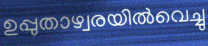
ഉപ്പുതാഴ്വരയിൽവെച്ചു